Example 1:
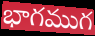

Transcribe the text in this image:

భాగముగ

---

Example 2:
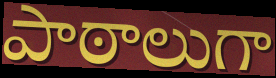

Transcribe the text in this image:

పాఠాలుగా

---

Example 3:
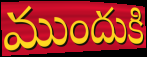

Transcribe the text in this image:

ముందుకి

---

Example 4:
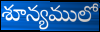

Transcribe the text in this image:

శూన్యములో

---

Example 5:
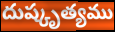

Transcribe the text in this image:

దుష్కృత్యము